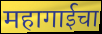
महागाईचा